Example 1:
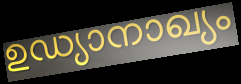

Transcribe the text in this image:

ഉഡ്യാനാഖ്യം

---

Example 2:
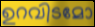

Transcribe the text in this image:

ഉറവിടമോ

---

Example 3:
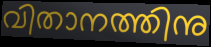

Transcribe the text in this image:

വിതാനത്തിനു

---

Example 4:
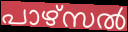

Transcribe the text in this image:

പാഴ്സൽ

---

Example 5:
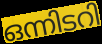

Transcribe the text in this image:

ഒന്നിടറി